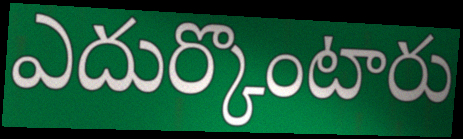
ఎదుర్కొంటారు